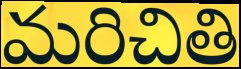
మరిచితి